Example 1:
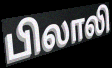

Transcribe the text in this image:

பிலாலி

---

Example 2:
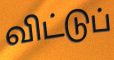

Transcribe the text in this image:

விட்டுப்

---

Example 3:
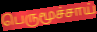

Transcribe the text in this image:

பெருமூச்சாய்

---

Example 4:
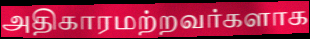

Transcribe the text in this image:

அதிகாரமற்றவர்களாக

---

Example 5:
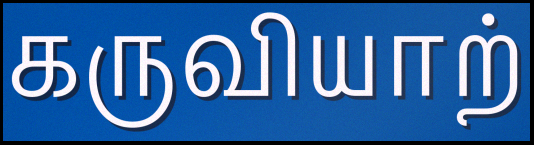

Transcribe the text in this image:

கருவியாற்